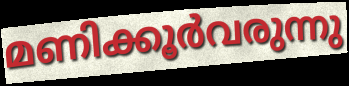
മണിക്കൂർവരുന്നു